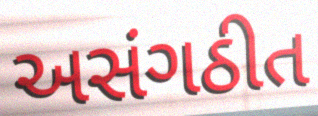
અસંગઠીત